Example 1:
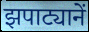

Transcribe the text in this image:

झपाट्यानें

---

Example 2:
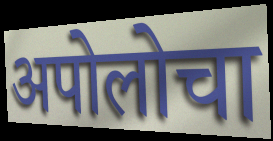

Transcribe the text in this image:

अपोलोचा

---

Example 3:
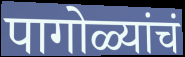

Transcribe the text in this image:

पागोळ्यांचं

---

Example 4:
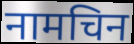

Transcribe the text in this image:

नामचिन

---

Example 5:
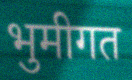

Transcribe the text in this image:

भुमीगत